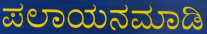
ಪಲಾಯನಮಾಡಿ